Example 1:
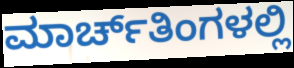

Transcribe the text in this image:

ಮಾರ್ಚ್‌ತಿಂಗಳಲ್ಲಿ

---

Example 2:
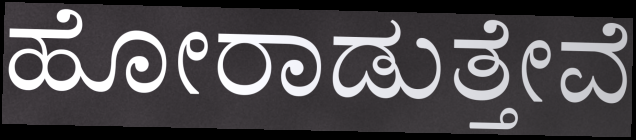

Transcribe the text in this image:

ಹೋರಾಡುತ್ತೇವೆ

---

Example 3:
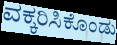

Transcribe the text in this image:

ವಕ್ಕರಿಸಿಕೊಂಡು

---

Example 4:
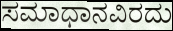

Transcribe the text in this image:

ಸಮಾಧಾನವಿರದು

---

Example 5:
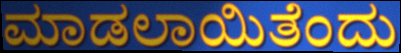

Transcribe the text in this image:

ಮಾಡಲಾಯಿತೆಂದು